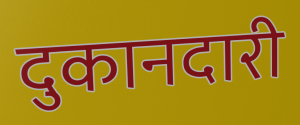
दुकानदारी